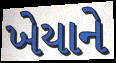
ખેયાને